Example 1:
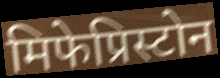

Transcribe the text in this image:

मिफेप्रिस्टोन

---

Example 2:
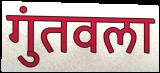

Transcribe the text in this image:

गुंतवला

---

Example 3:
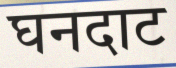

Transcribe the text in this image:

घनदाट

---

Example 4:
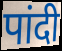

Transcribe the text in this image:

पांदी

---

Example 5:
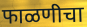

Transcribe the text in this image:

फाळणीचा